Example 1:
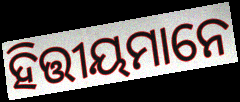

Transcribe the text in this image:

ହିତ୍ତୀୟମାନେ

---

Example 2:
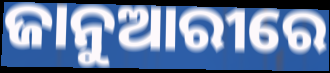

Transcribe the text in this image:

ଜାନୁଆରୀରେ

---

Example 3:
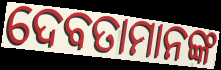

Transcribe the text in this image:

ଦେବତାମାନଙ୍କ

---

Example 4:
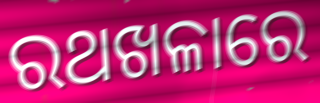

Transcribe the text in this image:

ରଥଖଳାରେ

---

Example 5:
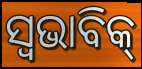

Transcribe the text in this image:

ସ୍ୱଭାବିକ୍